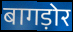
बागड़ोर